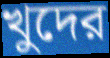
খুদের